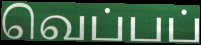
வெப்பப்